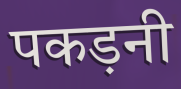
पकड़नी